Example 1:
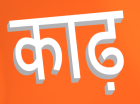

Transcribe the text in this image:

काढ़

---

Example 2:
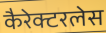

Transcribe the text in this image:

कैरेक्टरलेस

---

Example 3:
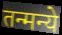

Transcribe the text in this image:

तन्मन्ये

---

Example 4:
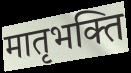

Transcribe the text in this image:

मातृभक्ति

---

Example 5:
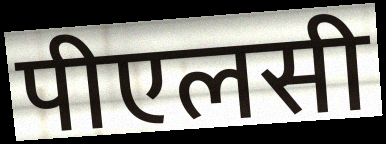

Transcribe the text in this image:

पीएलसी